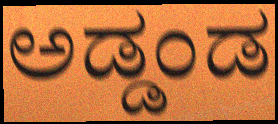
ಅಡ್ಡಂಡ